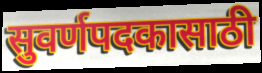
सुवर्णपदकासाठी